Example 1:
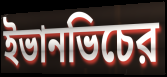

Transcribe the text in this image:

ইভানভিচের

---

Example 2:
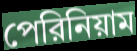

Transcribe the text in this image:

পেরিনিয়াম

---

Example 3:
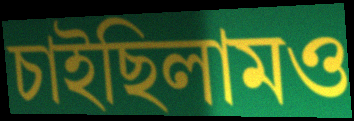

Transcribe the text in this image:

চাইছিলামও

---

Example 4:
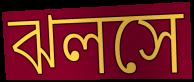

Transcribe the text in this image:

ঝলসে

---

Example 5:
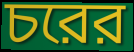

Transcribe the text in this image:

চরের